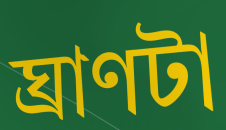
ঘ্রাণটা